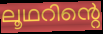
ലൂഥറിന്റെ